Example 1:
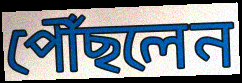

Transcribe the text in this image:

পৌঁছলেন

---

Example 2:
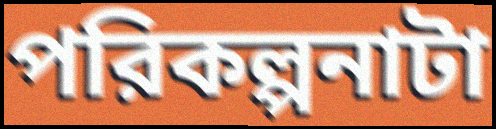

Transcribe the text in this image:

পরিকল্পনাটা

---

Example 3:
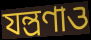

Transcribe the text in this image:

যন্ত্রণাও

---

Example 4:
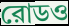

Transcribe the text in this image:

রোডও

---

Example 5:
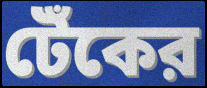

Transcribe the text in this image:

টেঁকের